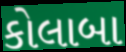
કોલાબા